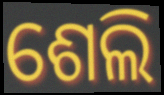
ଶେଲି